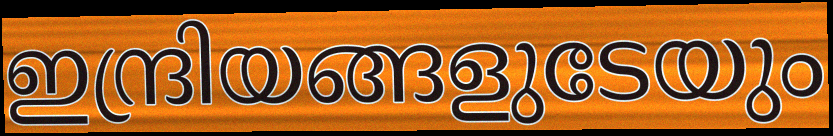
ഇന്ദ്രിയങ്ങളുടേയും